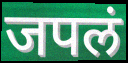
जपलं